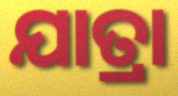
ଯାତ୍ରା